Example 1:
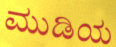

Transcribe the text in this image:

ಮುಡಿಯ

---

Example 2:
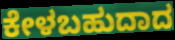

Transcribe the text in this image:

ಕೇಳಬಹುದಾದ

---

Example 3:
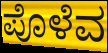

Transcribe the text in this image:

ಪೊಳೆವ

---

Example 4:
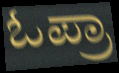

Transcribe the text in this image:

ಓಪ್ರಾ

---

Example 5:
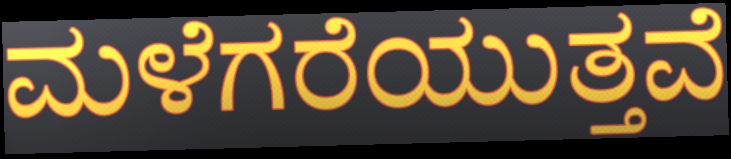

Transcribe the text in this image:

ಮಳೆಗರೆಯುತ್ತವೆ